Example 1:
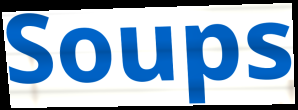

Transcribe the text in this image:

Soups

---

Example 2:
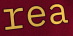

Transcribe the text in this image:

rea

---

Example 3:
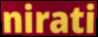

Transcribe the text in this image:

nirati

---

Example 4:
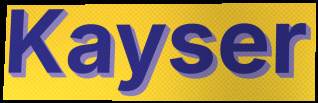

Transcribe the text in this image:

Kayser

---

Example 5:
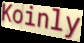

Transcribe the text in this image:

Koinly